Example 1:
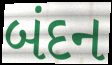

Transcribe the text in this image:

બંદન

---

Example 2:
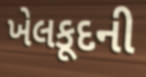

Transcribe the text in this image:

ખેલકૂદની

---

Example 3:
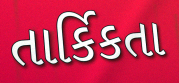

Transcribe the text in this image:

તાર્કિકતા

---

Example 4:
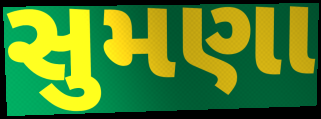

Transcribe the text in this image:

સુમણા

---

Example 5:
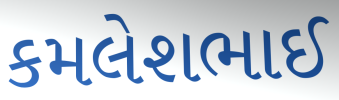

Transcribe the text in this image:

કમલેશભાઈ